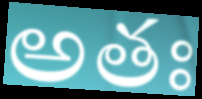
అతః